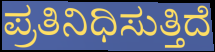
ಪ್ರತಿನಿಧಿಸುತ್ತಿದೆ